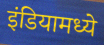
इंडियामध्ये